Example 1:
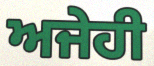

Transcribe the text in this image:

ਅਜੇਹੀ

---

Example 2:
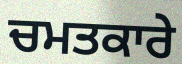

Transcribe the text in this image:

ਚਮਤਕਾਰੇ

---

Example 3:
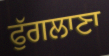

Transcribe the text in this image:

ਫੁੱਗਲਾਣਾ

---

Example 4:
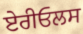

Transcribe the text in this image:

ਏਰੀਓਲਸ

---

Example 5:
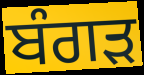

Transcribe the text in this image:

ਬੰਗੜ